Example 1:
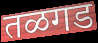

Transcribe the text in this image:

तळगड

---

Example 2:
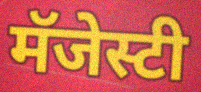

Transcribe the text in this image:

मॅजेस्टी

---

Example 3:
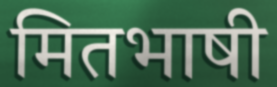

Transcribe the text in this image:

मितभाषी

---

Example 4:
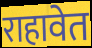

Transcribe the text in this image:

राहावेत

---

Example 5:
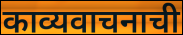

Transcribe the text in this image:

काव्यवाचनाची